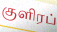
குளிரப்